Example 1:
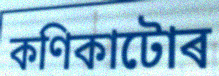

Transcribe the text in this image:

কণিকাটোৰ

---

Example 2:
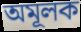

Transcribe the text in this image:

অমূলক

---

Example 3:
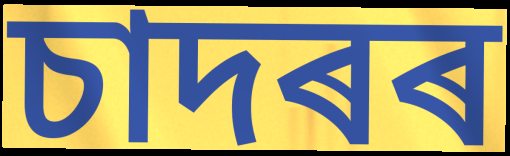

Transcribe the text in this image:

চাদৰৰ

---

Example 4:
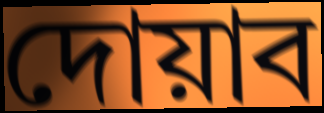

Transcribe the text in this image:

দোয়াব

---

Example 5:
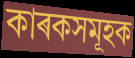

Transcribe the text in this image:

কাৰকসমূহক